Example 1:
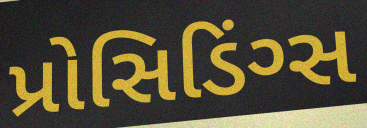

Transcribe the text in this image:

પ્રોસિડિંગ્સ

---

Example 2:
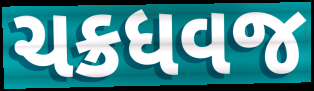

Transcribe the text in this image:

ચક્રધવજ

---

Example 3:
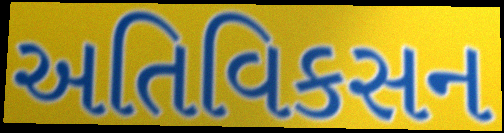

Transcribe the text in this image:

અતિવિકસન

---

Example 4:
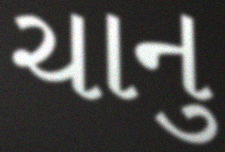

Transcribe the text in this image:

ચાનુ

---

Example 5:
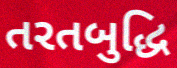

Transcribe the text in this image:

તરતબુદ્ધિ